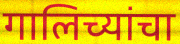
गालिच्यांचा